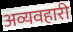
अव्यवहारी